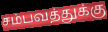
சம்பவத்துக்கு